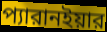
প্যারানইয়ার